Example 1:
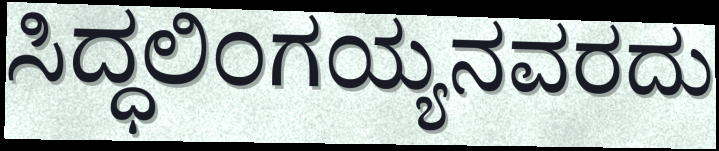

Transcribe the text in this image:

ಸಿದ್ಧಲಿಂಗಯ್ಯನವರದು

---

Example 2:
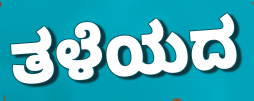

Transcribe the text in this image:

ತಳೆಯದ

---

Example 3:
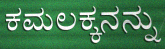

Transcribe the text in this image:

ಕಮಲಕ್ಕನನ್ನು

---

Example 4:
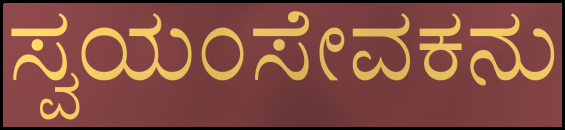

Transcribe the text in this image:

ಸ್ವಯಂಸೇವಕನು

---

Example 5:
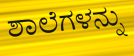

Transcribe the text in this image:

ಶಾಲೆಗಳನ್ನು